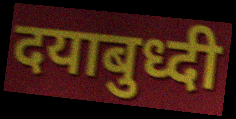
दयाबुध्दी